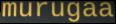
murugaa